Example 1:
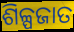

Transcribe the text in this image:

ଶିଳ୍ପଜାତ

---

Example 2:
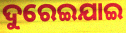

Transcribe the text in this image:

ଦୁରେଇଯାଇ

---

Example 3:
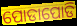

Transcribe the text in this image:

ପୋଡାପୋଡି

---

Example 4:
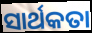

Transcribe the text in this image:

ସାର୍ଥକତା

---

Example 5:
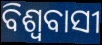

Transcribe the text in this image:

ବିଶ୍ୱବାସୀ